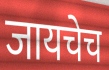
जायचेच